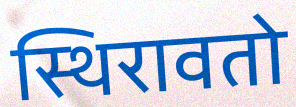
स्थिरावतो